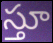
స్తూ